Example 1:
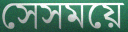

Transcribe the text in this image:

সেসময়ে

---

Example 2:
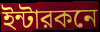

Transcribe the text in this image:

ইন্টারকনে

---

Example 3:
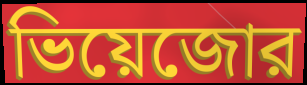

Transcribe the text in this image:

ভিয়েজোর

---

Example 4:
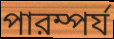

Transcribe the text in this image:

পারম্পর্য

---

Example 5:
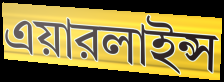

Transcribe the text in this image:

এয়ারলাইন্স